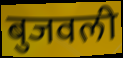
बुजवली